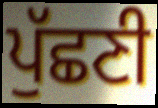
ਪੁੱਛਣੀ